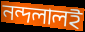
নন্দলালই